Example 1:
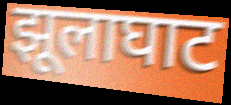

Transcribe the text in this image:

झूलाघाट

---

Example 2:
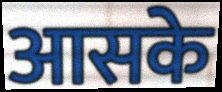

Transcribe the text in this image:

आसके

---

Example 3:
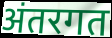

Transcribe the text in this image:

अंतरगत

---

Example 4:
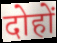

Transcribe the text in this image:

दोहों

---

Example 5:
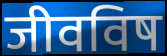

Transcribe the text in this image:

जीवविष